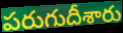
పరుగుదీశారు